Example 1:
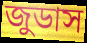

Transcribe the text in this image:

জুডাস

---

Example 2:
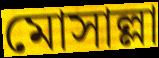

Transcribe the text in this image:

মোসাল্লা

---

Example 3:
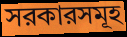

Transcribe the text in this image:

সরকারসমূহ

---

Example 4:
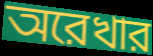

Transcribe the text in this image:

অরেখার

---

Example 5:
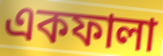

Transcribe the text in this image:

একফালা